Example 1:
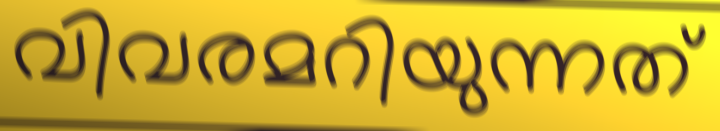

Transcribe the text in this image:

വിവരമറിയുന്നത്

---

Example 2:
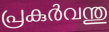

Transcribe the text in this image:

പ്രകുർവന്തു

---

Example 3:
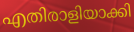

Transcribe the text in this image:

എതിരാളിയാക്കി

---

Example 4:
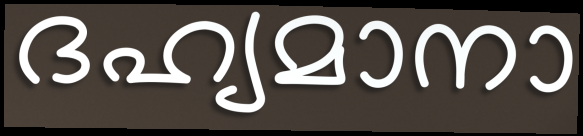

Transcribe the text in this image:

ദഹ്യമാനാ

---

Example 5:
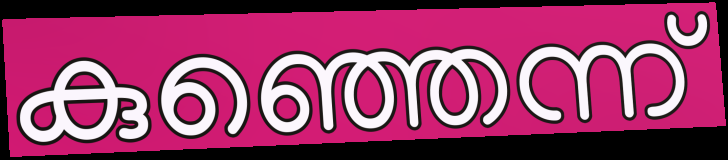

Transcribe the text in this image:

കുഞ്ഞെന്ന്